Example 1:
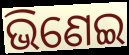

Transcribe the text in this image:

ଭିଣେଇ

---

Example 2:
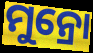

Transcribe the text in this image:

ମୁନ୍ରୋ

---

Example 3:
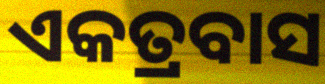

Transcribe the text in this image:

ଏକତ୍ରବାସ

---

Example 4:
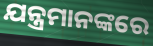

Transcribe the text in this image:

ଯନ୍ତ୍ରମାନଙ୍କରେ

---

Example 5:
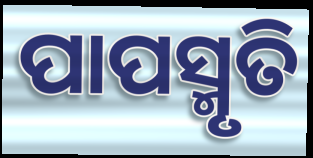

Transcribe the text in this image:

ପାପସ୍ମୃତି